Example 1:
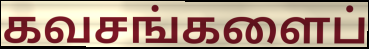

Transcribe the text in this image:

கவசங்களைப்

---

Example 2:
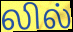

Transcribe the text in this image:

லில்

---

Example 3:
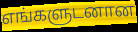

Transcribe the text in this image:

எங்களுடனான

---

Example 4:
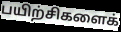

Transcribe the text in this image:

பயிற்சிகளைக்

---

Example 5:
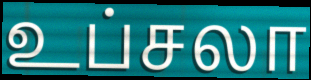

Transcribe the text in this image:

உப்சலா